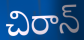
చిరాన్